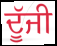
ਦੂੱਜੀ